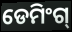
ଡେମିଂଗ୍